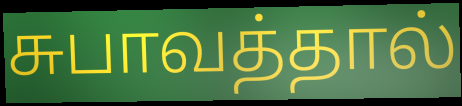
சுபாவத்தால்